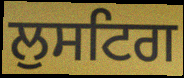
ਲੁਸਟਿਗ